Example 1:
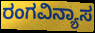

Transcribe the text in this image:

ರಂಗವಿನ್ಯಾಸ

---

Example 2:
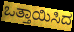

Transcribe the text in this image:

ಒತ್ತಾಯಿಸಿದ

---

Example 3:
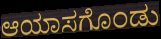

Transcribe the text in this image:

ಆಯಾಸಗೊಂಡು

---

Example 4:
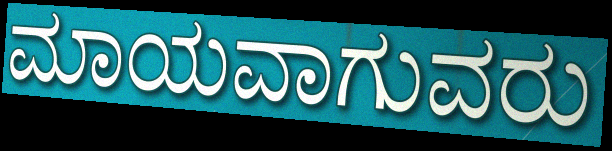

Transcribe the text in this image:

ಮಾಯವಾಗುವರು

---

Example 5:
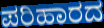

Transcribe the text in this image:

ಪರಿಹಾರದ